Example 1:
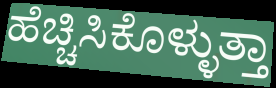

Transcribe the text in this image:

ಹೆಚ್ಚಿಸಿಕೊಳ್ಳುತ್ತಾ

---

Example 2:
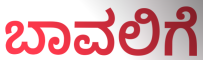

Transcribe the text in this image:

ಬಾವಲಿಗೆ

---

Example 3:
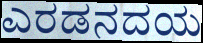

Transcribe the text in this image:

ಎರಡನದಯ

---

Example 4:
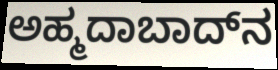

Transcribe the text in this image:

ಅಹ್ಮದಾಬಾದ್‌ನ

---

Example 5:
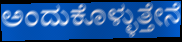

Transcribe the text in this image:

ಅಂದುಕೊಳ್ಳುತ್ತೇನೆ